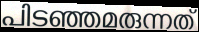
പിടഞ്ഞമരുന്നത്